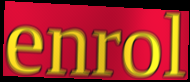
enrol